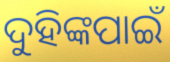
ଦୁହିଙ୍କପାଇଁ